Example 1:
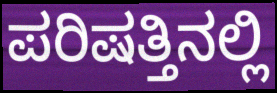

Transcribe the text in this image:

ಪರಿಷತ್ತಿನಲ್ಲಿ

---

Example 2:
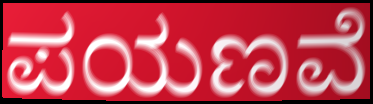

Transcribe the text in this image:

ಪಯಣವೆ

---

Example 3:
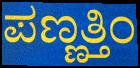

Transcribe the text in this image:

ಪಣ್ಣತ್ತಿಂ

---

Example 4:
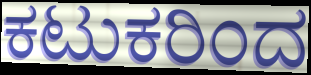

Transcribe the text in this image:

ಕಟುಕರಿಂದ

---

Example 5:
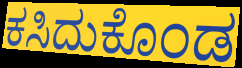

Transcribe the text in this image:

ಕಸಿದುಕೊಂಡ